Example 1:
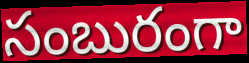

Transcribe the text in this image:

సంబురంగా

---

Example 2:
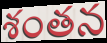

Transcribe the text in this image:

శంతన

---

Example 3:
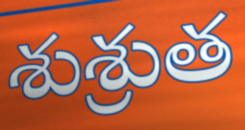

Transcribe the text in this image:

శుశ్రుత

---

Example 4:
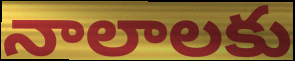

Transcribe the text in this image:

నాలాలకు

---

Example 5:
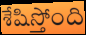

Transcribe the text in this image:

శేషిస్తోంది